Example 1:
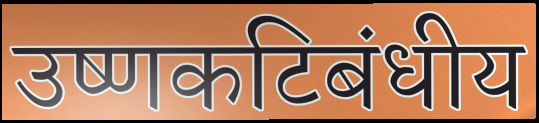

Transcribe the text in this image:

उष्णकटिबंधीय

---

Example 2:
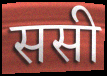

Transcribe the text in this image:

ससी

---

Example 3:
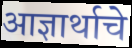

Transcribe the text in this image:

आज्ञार्थाचे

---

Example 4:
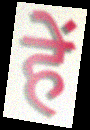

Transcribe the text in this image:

हें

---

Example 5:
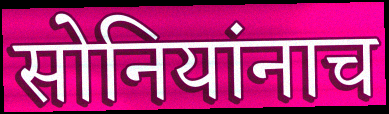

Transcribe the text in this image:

सोनियांनाच